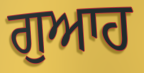
ਗੁਆਹ